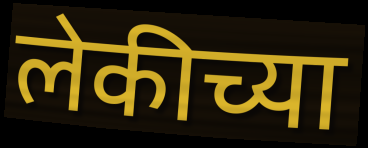
लेकीच्या